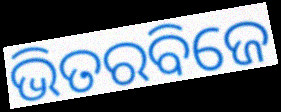
ଭିତରବିଜେ